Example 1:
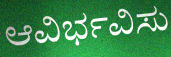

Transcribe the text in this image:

ಆವಿರ್ಭವಿಸು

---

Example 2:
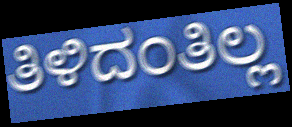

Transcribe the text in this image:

ತಿಳಿದಂತಿಲ್ಲ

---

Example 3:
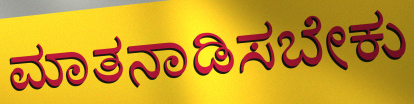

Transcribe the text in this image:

ಮಾತನಾಡಿಸಬೇಕು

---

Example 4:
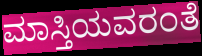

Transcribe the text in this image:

ಮಾಸ್ತಿಯವರಂತೆ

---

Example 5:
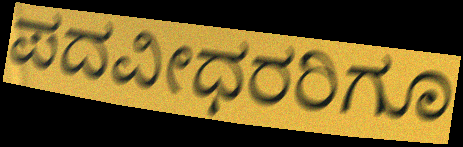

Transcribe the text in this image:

ಪದವೀಧರರಿಗೂ